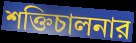
শক্তিচালনার